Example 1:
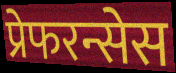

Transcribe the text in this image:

प्रेफरन्सेस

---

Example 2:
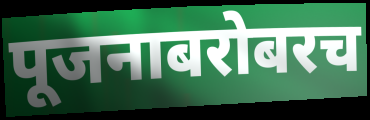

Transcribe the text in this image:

पूजनाबरोबरच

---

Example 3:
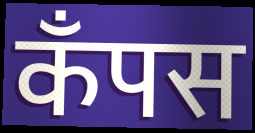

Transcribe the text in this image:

कॅंपस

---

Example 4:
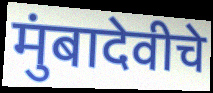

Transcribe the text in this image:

मुंबादेवीचे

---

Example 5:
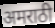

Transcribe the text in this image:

अमराठी